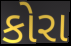
કોરા